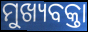
ମୁଖ୍ୟବକ୍ତା